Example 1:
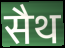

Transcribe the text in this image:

सैथ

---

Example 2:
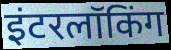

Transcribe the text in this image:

इंटरलॉकिंग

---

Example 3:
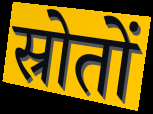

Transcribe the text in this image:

स्रोतों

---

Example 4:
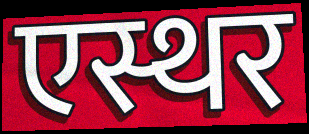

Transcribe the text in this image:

एस्थर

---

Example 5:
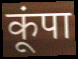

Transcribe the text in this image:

कूंपा